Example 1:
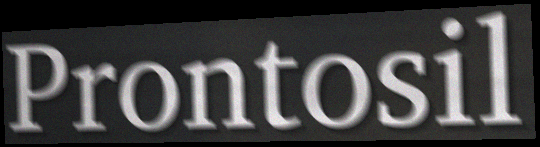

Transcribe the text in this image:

Prontosil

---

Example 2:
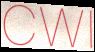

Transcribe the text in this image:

CWI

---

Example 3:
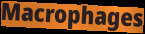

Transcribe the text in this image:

Macrophages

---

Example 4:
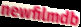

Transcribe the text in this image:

newfilmdb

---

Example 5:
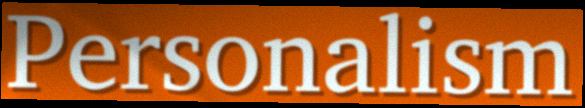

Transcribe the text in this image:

Personalism